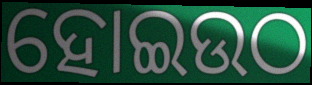
ହୋଇଉଠ